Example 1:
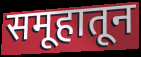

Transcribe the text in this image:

समूहातून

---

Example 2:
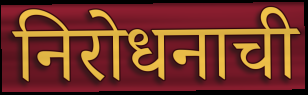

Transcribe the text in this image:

निरोधनाची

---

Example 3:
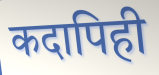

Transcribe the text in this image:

कदापिही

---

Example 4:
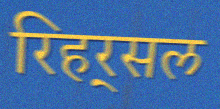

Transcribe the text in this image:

रिहर्सल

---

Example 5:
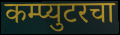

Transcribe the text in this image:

कम्प्युटरचा